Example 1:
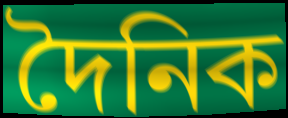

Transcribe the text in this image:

দৈনিক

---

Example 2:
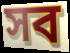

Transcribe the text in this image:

সব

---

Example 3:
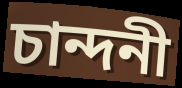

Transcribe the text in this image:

চান্দনী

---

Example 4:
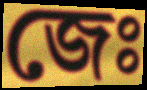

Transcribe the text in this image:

জেঃ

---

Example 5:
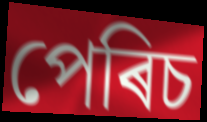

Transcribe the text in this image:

পেৰিচ